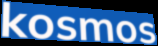
kosmos